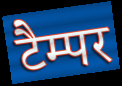
टैम्पर